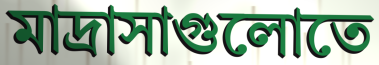
মাদ্রাসাগুলোতে